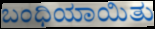
ಬಂಧಿಯಾಯಿತು